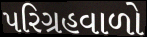
પરિગ્રહવાળો